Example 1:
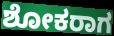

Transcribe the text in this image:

ಶೋಕರಾಗ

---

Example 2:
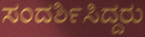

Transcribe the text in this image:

ಸಂದರ್ಶಿಸಿದ್ದರು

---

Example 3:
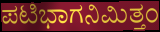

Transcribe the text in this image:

ಪಟಿಭಾಗನಿಮಿತ್ತಂ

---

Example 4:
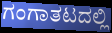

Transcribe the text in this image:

ಗಂಗಾತಟದಲ್ಲಿ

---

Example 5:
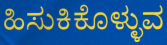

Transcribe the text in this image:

ಹಿಸುಕಿಕೊಳ್ಳುವ